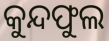
କୁନ୍ଦଫୁଲ